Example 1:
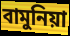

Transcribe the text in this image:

বামুনিয়া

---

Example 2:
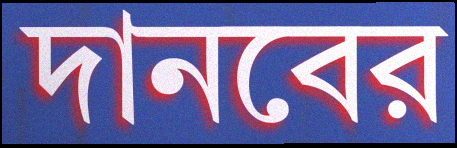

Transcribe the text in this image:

দানবের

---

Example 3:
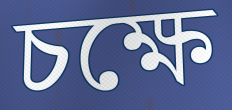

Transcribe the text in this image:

চক্ষে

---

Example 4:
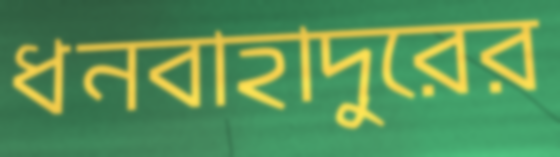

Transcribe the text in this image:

ধনবাহাদুরের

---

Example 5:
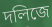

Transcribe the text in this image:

দলিজে